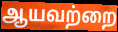
ஆயவற்றை